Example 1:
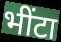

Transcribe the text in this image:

भींटा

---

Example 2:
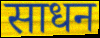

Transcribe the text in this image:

साधन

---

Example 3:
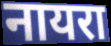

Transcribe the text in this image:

नायरा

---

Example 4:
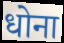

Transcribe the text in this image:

धोना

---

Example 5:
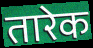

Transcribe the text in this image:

तारेक